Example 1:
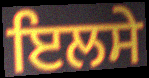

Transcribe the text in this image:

ਇਲਸੇ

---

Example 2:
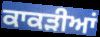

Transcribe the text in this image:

ਕਾਕੜੀਆਂ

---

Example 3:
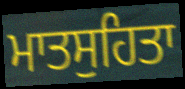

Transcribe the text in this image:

ਮਾਤਸੁਹਿਤਾ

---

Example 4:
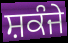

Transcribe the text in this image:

ਸ਼ਕੰਜੇ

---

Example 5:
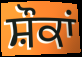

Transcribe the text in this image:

ਸ਼ੌਕਾਂ